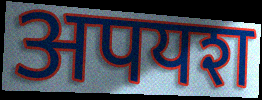
अपयश